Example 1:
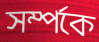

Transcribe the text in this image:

সৰ্ম্পকে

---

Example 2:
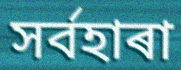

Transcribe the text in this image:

সৰ্বহাৰা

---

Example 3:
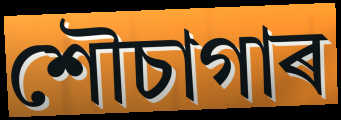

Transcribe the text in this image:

শৌচাগাৰ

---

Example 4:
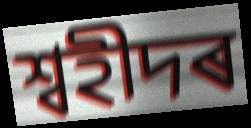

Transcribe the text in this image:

শ্বহীদৰ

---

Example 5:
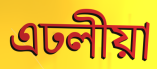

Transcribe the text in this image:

এঢলীয়া